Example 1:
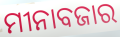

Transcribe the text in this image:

ମୀନାବଜାର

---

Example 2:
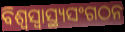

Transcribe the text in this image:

ବିଶ୍ଵସ୍ଵାସ୍ଥ୍ୟସଂଗଠନ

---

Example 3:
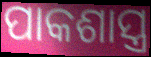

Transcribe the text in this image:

ପାକଶାସ୍ତ୍ର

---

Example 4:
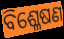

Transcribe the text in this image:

ବିଶ୍ଳେଷଣ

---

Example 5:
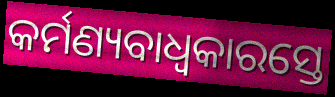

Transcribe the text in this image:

କର୍ମଣ୍ୟବାଧ୍ୱକାରସ୍ତେ